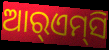
ଆର୍‌ଏମ୍‌ସି